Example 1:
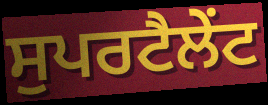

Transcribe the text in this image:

ਸੁਪਰਟੈਲੇਂਟ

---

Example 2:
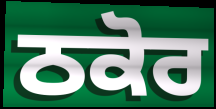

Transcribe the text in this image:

ਠਕੋਰ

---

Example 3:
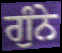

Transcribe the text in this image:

ਗੁੰਨੇ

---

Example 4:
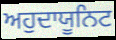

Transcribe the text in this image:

ਅਹੁਦਾਯੂਨਿਟ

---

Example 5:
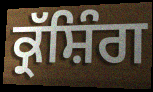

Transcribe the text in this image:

ਕ੍ਰੱਸ਼ਿੰਗ